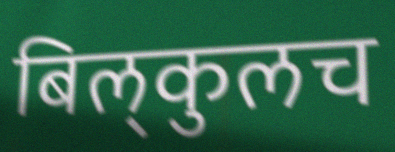
बिल्कुलच